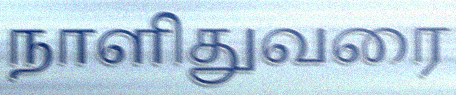
நாளிதுவரை